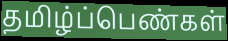
தமிழ்ப்பெண்கள்